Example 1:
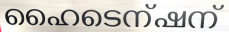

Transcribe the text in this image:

ഹൈടെന്ഷന്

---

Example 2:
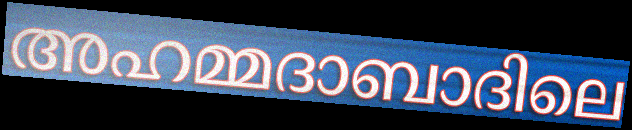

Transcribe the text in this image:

അഹമ്മദാബാദിലെ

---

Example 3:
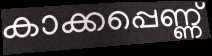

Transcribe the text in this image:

കാക്കപ്പെണ്ണ്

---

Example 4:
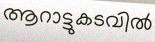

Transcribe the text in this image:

ആറാട്ടുകടവിൽ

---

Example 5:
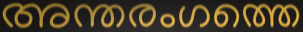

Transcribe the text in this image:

അന്തരംഗത്തെ